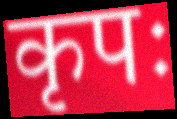
कृपः